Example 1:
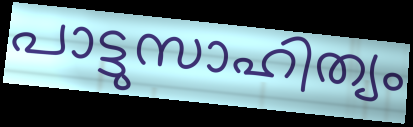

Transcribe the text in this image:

പാട്ടുസാഹിത്യം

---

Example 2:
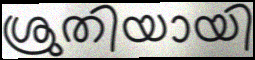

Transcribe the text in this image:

ശ്രുതിയായി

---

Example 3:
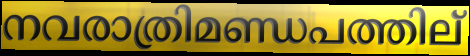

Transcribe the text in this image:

നവരാത്രിമണ്ഡപത്തില്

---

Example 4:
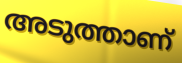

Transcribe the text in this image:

അടുത്താണ്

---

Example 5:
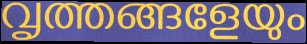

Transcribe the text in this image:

വൃത്തങ്ങളേയും